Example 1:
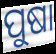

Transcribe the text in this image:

ପୁଷା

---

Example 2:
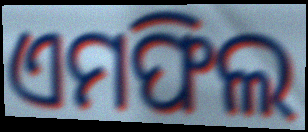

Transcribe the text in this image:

ଏମଫିଲ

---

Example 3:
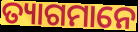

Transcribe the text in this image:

ତ୍ୟାଗମାନେ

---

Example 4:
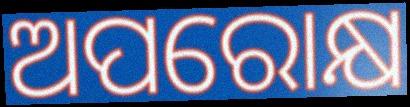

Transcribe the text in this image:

ଅପରୋକ୍ଷ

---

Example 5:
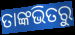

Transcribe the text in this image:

ତାଙ୍କଭିତରୁ